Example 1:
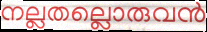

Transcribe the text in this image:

നല്ലതല്ലൊരുവൻ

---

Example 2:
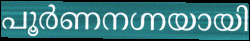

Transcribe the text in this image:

പൂർണനഗ്നയായി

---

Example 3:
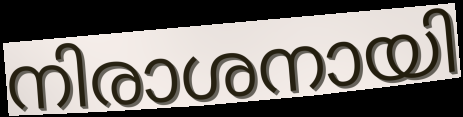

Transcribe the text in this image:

നിരാശനായി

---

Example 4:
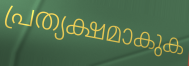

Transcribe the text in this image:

പ്രത്യക്ഷമാകുക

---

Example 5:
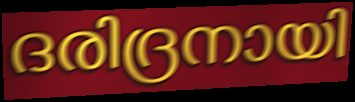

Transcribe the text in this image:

ദരിദ്രനായി